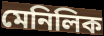
মেনিলিক